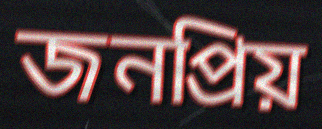
জনপ্ৰিয়